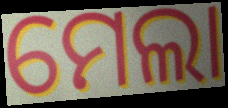
ମେଲା